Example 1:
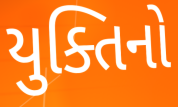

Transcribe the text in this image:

યુક્તિનો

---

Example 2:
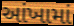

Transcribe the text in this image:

આંખામાં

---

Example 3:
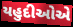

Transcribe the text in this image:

યહુદીઓએ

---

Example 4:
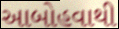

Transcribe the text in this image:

આબોહવાથી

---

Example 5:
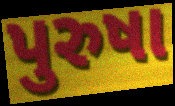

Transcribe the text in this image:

પુરુષા